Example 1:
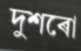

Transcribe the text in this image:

দুশৰো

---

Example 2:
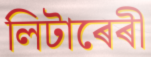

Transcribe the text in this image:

লিটাৰেৰী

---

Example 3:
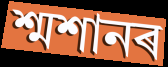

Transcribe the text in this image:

শ্মশানৰ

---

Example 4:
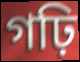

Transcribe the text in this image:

গঢ়ি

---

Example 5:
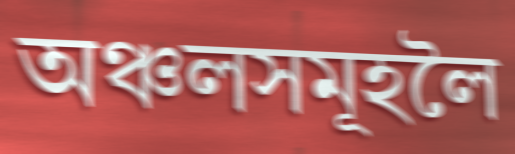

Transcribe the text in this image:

অঞ্চলসমূহলৈ